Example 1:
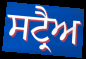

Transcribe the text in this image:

ਸਟ੍ਰੈਅ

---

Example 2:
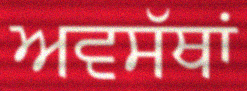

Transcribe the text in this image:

ਅਵਸੱਥਾਂ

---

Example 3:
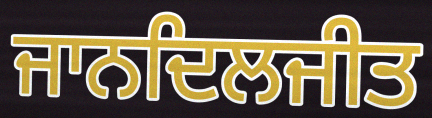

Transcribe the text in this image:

ਜਾਨਦਿਲਜੀਤ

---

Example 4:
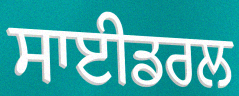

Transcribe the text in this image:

ਸਾਈਡਰਲ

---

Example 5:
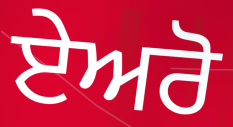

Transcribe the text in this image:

ਏਅਰੋ